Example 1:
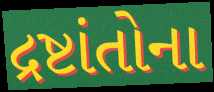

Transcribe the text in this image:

દ્રષ્ટાંતોના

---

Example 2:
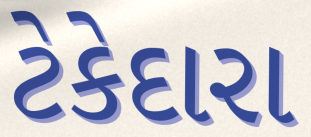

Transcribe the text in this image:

ટેકેદારા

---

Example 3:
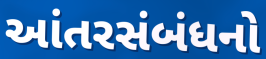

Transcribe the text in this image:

આંતરસંબંધનો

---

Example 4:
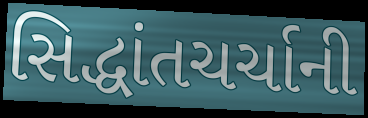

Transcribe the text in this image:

સિદ્ધાંતચર્ચાની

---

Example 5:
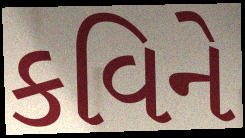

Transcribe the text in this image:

કવિને